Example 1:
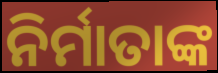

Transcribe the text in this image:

ନିର୍ମାତାଙ୍କ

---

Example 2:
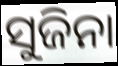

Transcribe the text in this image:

ସୁଜିନା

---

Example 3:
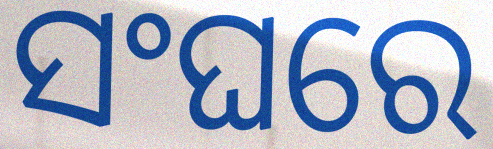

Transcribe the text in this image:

ସଂଘରେ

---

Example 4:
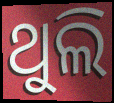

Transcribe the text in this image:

ଥୁଲି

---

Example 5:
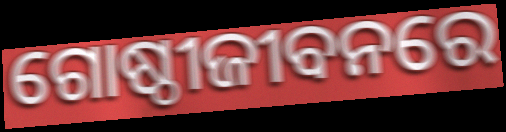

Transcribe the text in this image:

ଗୋଷ୍ଠୀଜୀବନରେ